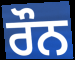
ਰੌਨ